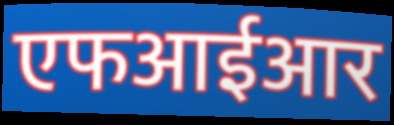
एफआईआर